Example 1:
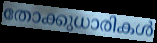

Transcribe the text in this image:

തോക്കുധാരികൾ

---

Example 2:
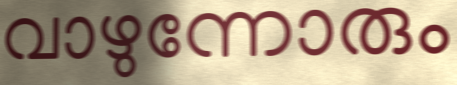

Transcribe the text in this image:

വാഴുന്നോരും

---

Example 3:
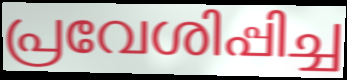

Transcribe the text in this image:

പ്രവേശിപ്പിച്ച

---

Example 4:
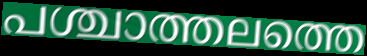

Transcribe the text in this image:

പശ്ചാത്തലത്തെ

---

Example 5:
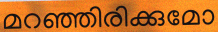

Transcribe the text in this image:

മറഞ്ഞിരിക്കുമോ